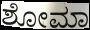
ಶೋಮಾ